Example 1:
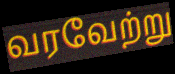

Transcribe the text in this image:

வரவேற்று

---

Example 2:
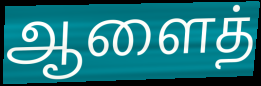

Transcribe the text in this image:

ஆளைத்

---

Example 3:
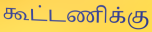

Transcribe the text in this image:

கூட்டணிக்கு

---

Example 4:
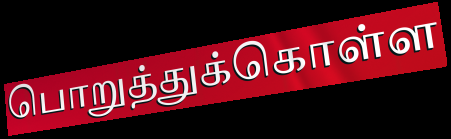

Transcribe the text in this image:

பொறுத்துக்கொள்ள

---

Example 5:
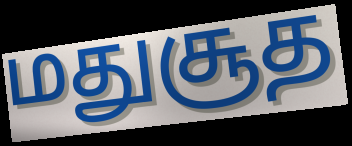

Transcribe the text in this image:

மதுசூத